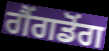
ਗੈਂਗਡੋਂਗ